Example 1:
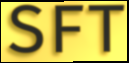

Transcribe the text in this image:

SFT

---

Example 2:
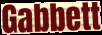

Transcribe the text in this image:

Gabbett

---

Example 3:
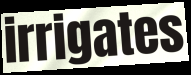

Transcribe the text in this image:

irrigates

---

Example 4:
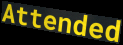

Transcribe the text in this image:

Attended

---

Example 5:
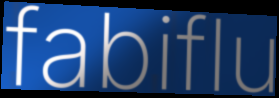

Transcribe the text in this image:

fabiflu